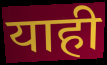
याही